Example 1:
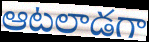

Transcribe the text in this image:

ఆటలాడగా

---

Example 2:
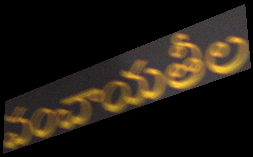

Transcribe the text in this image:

పంచాయతీల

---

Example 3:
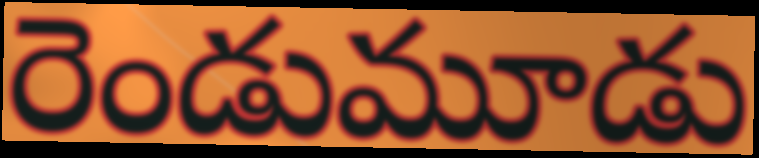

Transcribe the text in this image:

రెండుమూడు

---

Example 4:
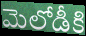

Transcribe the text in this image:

మెలోడీకి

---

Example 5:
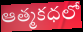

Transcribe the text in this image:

ఆత్మకధలో